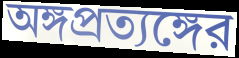
অঙ্গপ্রত্যঙ্গের